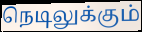
நெடிலுக்கும்